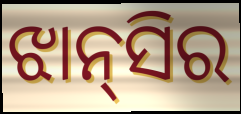
ଝାନ୍‌ସିର